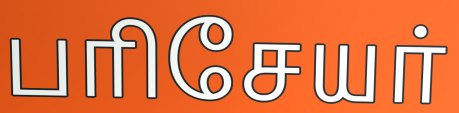
பரிசேயர்